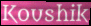
Koushik